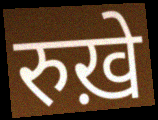
रुख़े